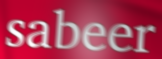
sabeer